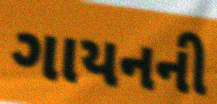
ગાયનની